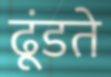
ढूंडते